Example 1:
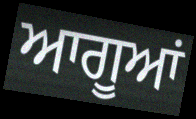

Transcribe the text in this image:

ਆਗੂਆਂ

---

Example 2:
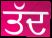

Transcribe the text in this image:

ਤੱਦ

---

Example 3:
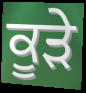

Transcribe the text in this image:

ਕੂਡ਼ੇ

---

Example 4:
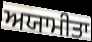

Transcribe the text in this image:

ਅਯਾਮੀਤਾ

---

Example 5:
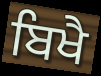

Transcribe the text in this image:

ਬਿਖੈ